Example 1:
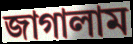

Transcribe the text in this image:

জাগালাম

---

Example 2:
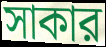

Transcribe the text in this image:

সাকার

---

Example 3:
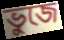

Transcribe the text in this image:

ভুজে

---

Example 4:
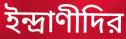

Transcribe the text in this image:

ইন্দ্রাণীদির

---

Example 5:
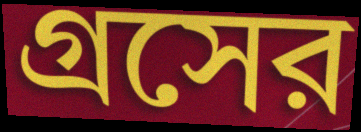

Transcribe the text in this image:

গ্রসের